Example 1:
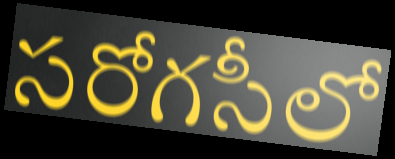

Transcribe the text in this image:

సరోగసీలో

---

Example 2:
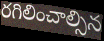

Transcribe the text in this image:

రగిలించాల్సిన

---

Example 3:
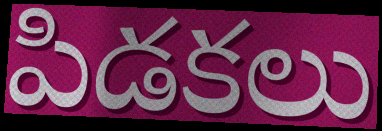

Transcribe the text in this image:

పిడకలు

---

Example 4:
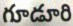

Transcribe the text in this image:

గూడూరి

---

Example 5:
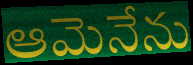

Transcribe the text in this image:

ఆమెనేను